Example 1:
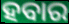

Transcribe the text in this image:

ହବାର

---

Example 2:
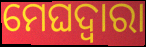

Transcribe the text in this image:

ମେଘଦ୍ୱାରା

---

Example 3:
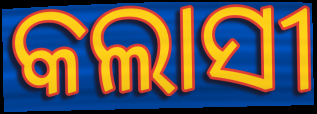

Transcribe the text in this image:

କଲାସୀ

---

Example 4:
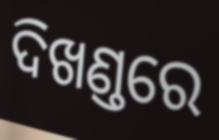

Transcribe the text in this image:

ଦିଖଣ୍ଡରେ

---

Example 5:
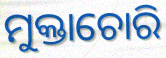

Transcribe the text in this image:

ମୁକ୍ତାଚୋରି